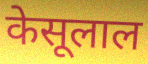
केसूलाल